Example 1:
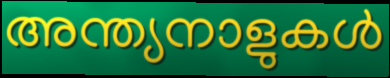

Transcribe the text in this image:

അന്ത്യനാളുകൾ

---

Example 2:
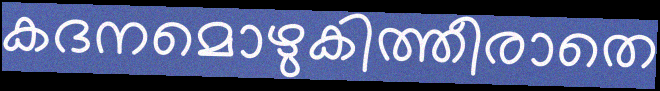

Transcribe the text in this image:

കദനമൊഴുകിത്തീരാതെ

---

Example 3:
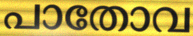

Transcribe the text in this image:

പാതോവ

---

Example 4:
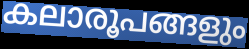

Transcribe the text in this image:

കലാരൂപങ്ങളും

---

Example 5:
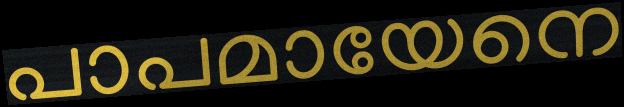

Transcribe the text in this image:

പാപമായേനെ